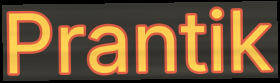
Prantik